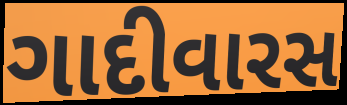
ગાદીવારસ